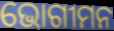
ଭୋଗୀମନ